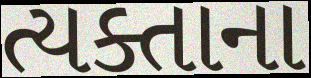
ત્યક્તાના